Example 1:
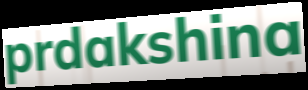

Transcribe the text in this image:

prdakshina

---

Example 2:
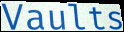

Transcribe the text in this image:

Vaults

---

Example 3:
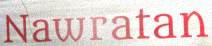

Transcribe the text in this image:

Nawratan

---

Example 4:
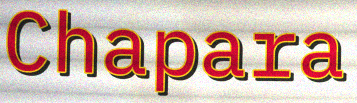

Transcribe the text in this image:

Chapara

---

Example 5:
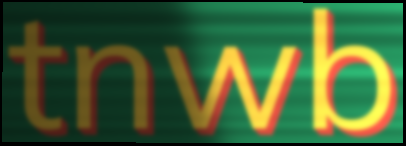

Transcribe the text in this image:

tnwb